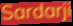
Sardarji